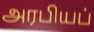
அரபியப்